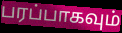
பரப்பாகவும்